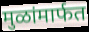
मुळांमार्फत